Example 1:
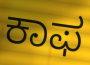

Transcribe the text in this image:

ಕಾಫ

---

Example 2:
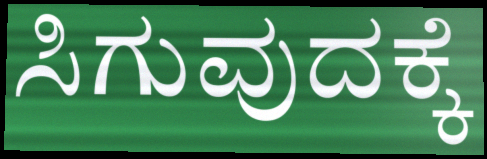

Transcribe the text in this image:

ಸಿಗುವುದಕ್ಕೆ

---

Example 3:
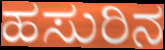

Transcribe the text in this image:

ಹಸುರಿನ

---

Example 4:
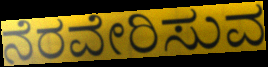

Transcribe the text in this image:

ನೆರವೇರಿಸುವ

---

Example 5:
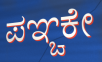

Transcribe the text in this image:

ಪಞ್ಚಕೇ